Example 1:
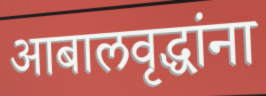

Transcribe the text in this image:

आबालवृद्धांना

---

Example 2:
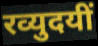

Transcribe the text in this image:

रव्युदयीं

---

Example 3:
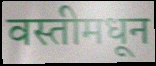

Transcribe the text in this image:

वस्तीमधून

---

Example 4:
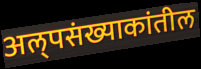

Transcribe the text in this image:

अल्पसंख्याकांतील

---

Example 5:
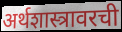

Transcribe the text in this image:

अर्थशास्त्रावरची